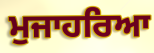
ਮੁਜਾਹਰਿਆ